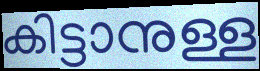
കിട്ടാനുള്ള